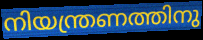
നിയന്ത്രണത്തിനു